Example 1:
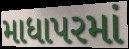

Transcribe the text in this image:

માધાપરમાં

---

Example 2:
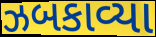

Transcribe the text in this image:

ઝબકાવ્યા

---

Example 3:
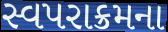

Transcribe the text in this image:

સ્વપરાક્રમના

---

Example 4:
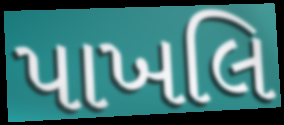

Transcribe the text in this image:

પાખલિ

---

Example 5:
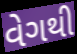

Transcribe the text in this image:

વેગથી